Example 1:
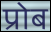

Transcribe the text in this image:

प्रोब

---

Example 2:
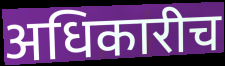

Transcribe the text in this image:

अधिकारीच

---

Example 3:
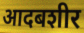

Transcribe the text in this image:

आदबशीर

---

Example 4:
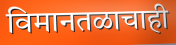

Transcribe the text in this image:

विमानतळाचाही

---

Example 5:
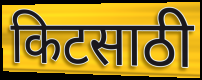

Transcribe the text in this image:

किटसाठी